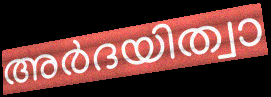
അർദയിത്വാ